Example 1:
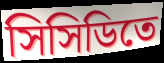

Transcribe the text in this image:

সিসিডিতে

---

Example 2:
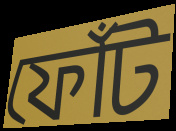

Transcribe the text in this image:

ফোঁট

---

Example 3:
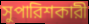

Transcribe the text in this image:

সুপারিশকারী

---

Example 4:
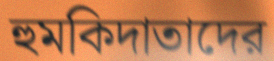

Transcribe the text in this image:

হুমকিদাতাদের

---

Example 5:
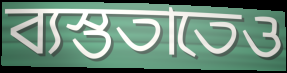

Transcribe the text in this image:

ব্যস্ততাতেও